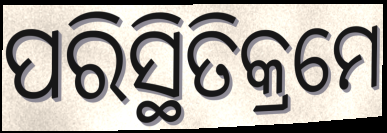
ପରିସ୍ଥିତିକ୍ରମେ